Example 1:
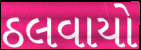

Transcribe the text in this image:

ઠલવાયો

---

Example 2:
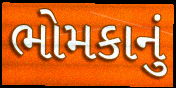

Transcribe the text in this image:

ભોમકાનું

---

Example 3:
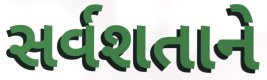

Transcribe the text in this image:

સર્વશતાને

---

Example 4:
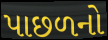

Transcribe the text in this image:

પાછળનો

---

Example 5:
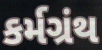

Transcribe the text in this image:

કર્મગ્રંથ